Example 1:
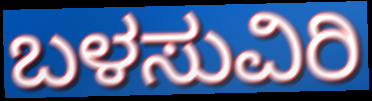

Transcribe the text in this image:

ಬಳಸುವಿರಿ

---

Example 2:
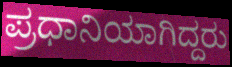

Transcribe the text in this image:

ಪ್ರಧಾನಿಯಾಗಿದ್ದರು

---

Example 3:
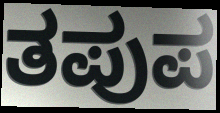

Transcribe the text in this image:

ತಪುಪ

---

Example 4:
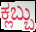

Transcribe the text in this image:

ಕ್ಲಬ್ಬು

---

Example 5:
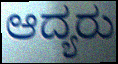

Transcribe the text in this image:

ಆದ್ಯರು